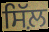
ਸਿੱਲ਼